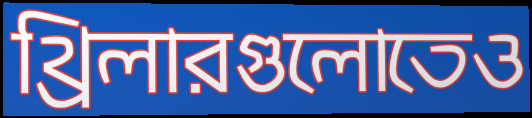
থ্রিলারগুলোতেও